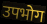
उपभोग